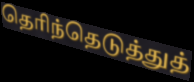
தெரிந்தெடுத்துத்